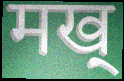
मख्